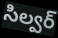
సిల్వర్